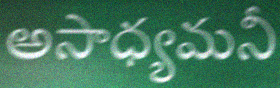
అసాధ్యమనీ